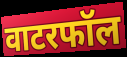
वाटरफॉल